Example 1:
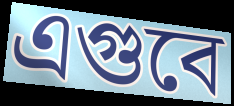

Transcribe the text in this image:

এগুবে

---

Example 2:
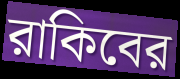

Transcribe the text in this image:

রাকিবের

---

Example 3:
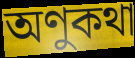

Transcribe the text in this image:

অণুকথা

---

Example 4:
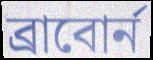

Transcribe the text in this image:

ব্রাবোর্ন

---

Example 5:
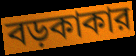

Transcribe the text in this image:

বড়কাকার